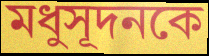
মধুসূদনকে